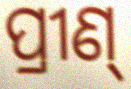
ପ୍ରୀଣ୍